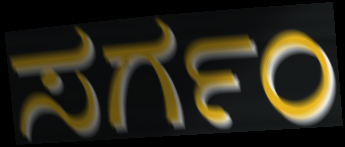
ಸರ್ಗಂ